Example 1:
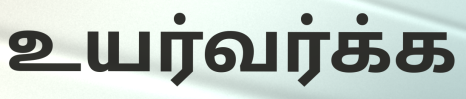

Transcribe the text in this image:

உயர்வர்க்க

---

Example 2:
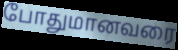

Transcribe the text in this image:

போதுமானவரை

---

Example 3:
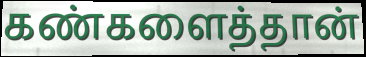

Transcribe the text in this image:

கண்களைத்தான்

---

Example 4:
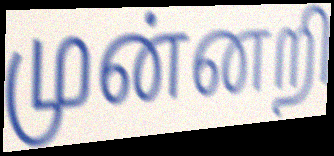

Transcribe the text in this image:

முன்னறி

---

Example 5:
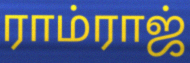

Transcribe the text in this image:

ராம்ராஜ்